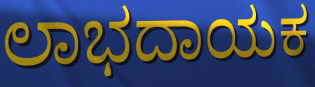
ಲಾಭದಾಯಕ